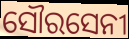
ସୌରସେନୀ